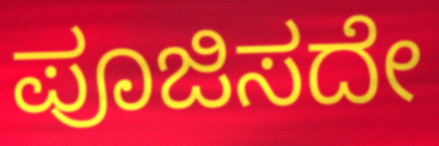
ಪೂಜಿಸದೇ